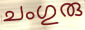
ചംഗുരു